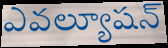
ఎవల్యూషన్